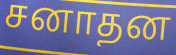
சனாதன